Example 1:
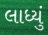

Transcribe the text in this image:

લાધ્યું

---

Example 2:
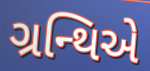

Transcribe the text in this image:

ગ્રન્થિએ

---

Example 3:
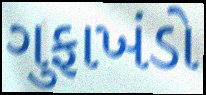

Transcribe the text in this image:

ગુફાખંડો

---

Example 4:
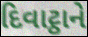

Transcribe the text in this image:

દિવાટ્ઠાને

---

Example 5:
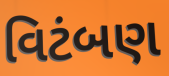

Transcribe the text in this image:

વિટંબણ